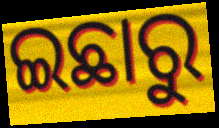
ଇଛାରୁ